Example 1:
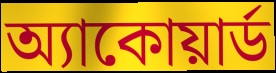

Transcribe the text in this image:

অ্যাকোয়ার্ড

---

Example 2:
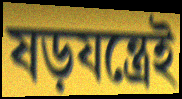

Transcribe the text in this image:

ষড়যন্ত্রেই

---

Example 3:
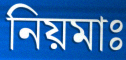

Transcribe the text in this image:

নিয়মাঃ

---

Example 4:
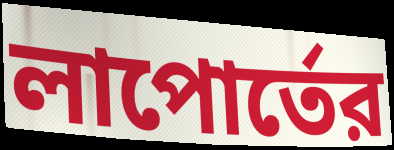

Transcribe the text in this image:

লাপোর্তের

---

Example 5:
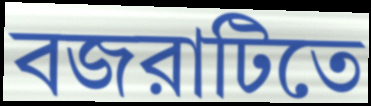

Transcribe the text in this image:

বজরাটিতে